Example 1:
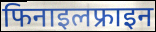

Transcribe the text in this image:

फिनाइलफ्राइन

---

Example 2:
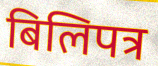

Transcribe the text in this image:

बिलिपत्र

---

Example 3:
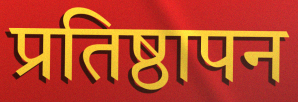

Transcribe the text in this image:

प्रतिष्ठापन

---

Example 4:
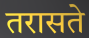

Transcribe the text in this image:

तरासते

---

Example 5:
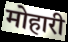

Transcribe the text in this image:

मोहारी